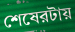
শেষেরটায়